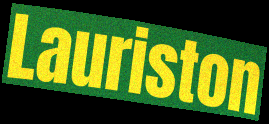
Lauriston